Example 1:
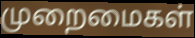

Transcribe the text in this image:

முறைமைகள்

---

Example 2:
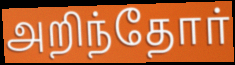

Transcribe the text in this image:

அறிந்தோர்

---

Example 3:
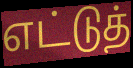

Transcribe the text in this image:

எட்டுத்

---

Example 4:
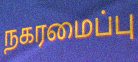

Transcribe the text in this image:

நகரமைப்பு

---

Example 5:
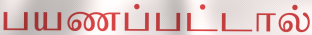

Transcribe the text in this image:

பயணப்பட்டால்